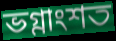
ভগ্নাংশত